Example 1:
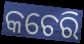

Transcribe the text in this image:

କଚେରି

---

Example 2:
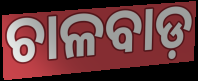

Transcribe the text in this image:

ଚାଳବାଡ଼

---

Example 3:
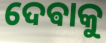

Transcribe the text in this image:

ଦେଵାକୁ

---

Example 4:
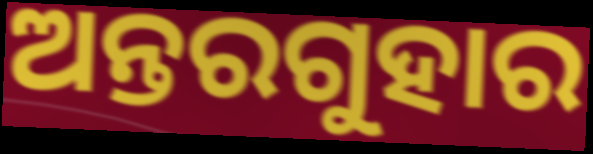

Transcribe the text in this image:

ଅନ୍ତରଗୁହାର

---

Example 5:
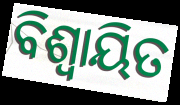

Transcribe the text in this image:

ବିଶ୍ବାୟିତ